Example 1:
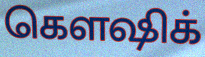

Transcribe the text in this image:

கௌஷிக்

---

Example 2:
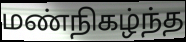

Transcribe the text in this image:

மண்நிகழ்ந்த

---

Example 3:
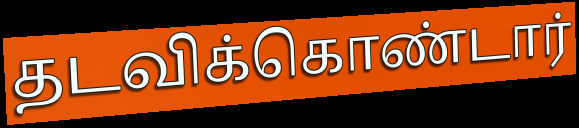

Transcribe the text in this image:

தடவிக்கொண்டார்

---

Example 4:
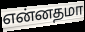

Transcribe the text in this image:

என்னதமா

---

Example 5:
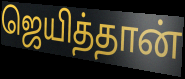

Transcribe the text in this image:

ஜெயித்தான்